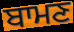
ਬਾਮਣ